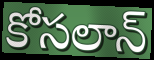
కోసలాన్